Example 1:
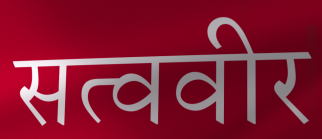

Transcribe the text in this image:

सत्ववीर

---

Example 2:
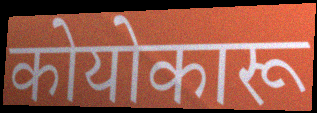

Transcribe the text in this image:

कोयोकारू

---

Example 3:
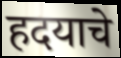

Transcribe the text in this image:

हदयाचे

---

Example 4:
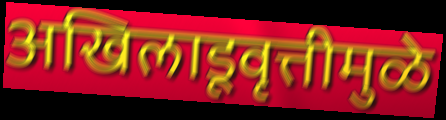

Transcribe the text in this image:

अखिलाडूवृत्तीमुळे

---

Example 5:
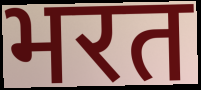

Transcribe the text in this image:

भरत